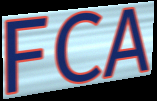
FCA